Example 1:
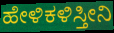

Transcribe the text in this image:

ಹೇಳಿಕಳಿಸ್ತೀನಿ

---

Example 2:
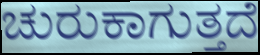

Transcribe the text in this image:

ಚುರುಕಾಗುತ್ತದೆ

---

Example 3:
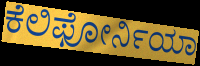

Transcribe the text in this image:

ಕೆಲಿಫೋರ್ನಿಯಾ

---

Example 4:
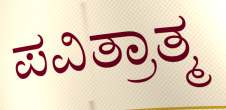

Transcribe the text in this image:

ಪವಿತ್ರಾತ್ಮ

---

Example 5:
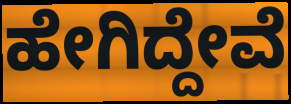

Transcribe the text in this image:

ಹೇಗಿದ್ದೇವೆ